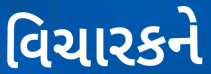
વિચારકને